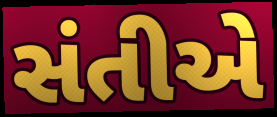
સંતીએ